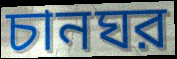
চানঘর